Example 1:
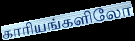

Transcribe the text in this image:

காரியங்களிலோ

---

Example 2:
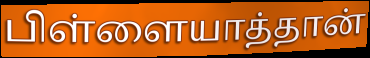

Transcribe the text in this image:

பிள்ளையாத்தான்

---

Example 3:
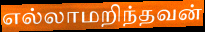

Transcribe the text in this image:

எல்லாமறிந்தவன்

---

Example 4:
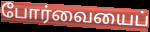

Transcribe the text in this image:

போர்வையைப்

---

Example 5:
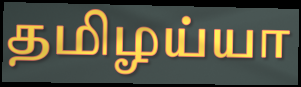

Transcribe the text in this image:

தமிழய்யா